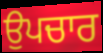
ਉਪਚਾਰ